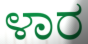
ಳಾರ